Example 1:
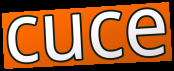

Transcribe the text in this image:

cuce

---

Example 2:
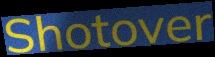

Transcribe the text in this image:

Shotover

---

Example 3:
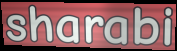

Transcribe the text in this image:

sharabi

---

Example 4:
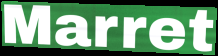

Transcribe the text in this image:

Marret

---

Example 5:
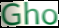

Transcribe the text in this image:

Gho